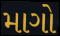
માગો